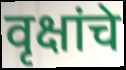
वृक्षांचे